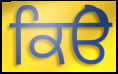
ਕਿੳੇ